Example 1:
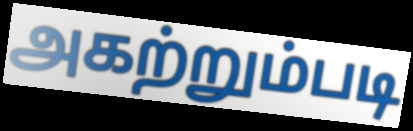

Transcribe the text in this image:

அகற்றும்படி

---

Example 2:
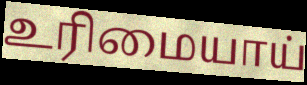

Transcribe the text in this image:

உரிமையாய்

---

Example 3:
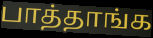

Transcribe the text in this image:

பாத்தாங்க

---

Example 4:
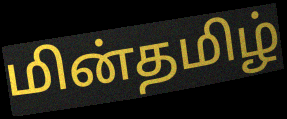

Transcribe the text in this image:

மின்தமிழ்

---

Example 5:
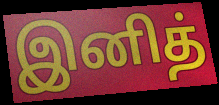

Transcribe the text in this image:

இனித்